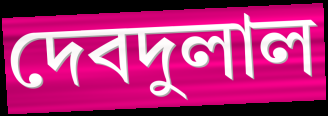
দেবদুলাল